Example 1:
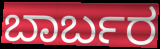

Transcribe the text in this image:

ಬಾರ್ಬರ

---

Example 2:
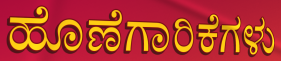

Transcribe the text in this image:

ಹೊಣೆಗಾರಿಕೆಗಳು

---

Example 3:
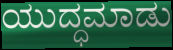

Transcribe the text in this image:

ಯುದ್ಧಮಾಡು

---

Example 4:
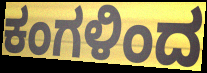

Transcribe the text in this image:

ಕಂಗಳಿಂದ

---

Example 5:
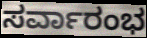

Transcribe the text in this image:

ಸರ್ವಾರಂಭ